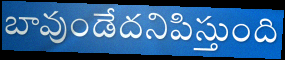
బావుండేదనిపిస్తుంది